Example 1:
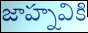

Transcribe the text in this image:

జాహ్నవికి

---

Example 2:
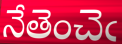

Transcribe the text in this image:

నేతెంచెఁ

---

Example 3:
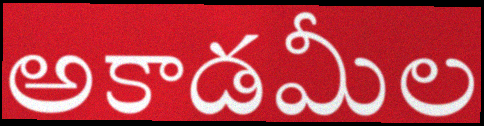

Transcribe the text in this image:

అకాడమీల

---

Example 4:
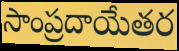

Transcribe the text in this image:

సాంప్రదాయేతర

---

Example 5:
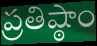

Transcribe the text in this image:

ప్రతిష్ఠాం